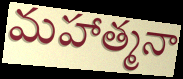
మహాత్మనా